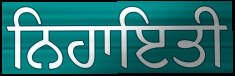
ਨਿਹਾਇਤੀ